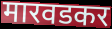
मारवडकर